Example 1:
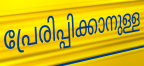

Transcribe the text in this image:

പ്രേരിപ്പിക്കാനുള്ള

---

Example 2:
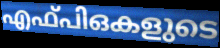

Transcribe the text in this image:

എഫ്പിഒകളുടെ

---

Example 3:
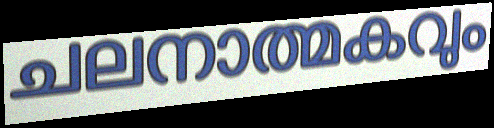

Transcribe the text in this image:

ചലനാത്മകവും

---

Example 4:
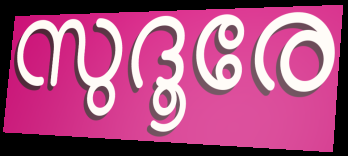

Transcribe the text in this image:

സുദൂരേ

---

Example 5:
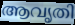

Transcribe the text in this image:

ആവൃതി